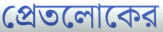
প্রেতলোকের